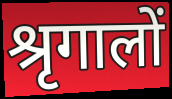
श्रृगालों